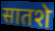
सातशे